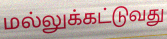
மல்லுக்கட்டுவது